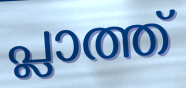
പ്ലാത്ത്